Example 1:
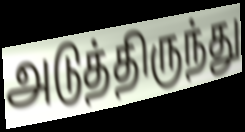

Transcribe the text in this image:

அடுத்திருந்து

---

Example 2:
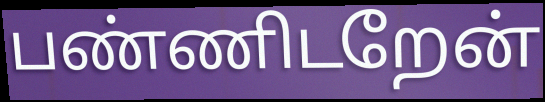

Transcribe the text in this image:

பண்ணிடறேன்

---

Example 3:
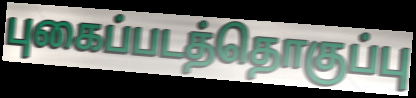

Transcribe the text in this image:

புகைப்படத்தொகுப்பு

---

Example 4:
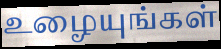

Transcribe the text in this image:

உழையுங்கள்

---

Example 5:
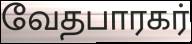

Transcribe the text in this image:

வேதபாரகர்